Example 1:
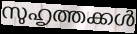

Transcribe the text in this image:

സുഹൃത്തക്കൾ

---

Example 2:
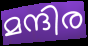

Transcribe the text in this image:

മന്ദിര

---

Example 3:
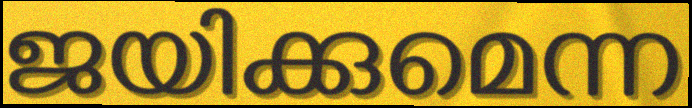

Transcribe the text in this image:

ജയിക്കുമെന്ന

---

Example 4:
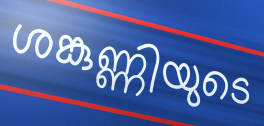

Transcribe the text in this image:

ശങ്കുണ്ണിയുടെ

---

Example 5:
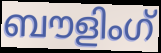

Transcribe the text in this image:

ബൗളിംഗ്